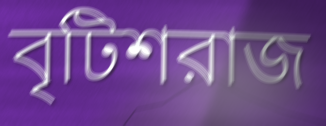
বৃটিশরাজ